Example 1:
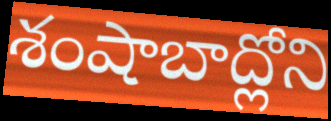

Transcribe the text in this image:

శంషాబాద్లోని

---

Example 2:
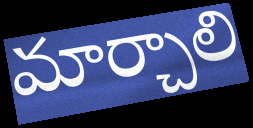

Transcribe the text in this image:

మార్చాలి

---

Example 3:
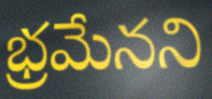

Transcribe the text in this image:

భ్రమేనని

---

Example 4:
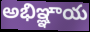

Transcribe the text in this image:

అభిఞ్ఞాయ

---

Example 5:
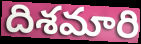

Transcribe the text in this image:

దిశమారి